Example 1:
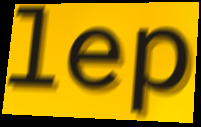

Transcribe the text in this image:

lep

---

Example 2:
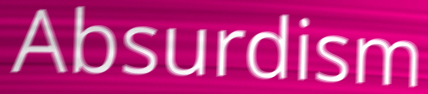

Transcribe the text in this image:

Absurdism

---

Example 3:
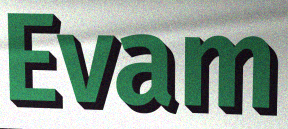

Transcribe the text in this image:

Evam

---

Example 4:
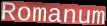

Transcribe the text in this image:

Romanum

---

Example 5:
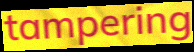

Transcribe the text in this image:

tampering